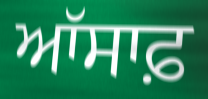
ਆੱਸਾਫ਼